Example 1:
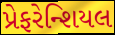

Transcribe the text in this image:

પ્રેફરેન્શિયલ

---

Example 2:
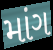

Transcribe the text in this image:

માંગ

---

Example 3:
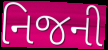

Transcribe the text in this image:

નિજની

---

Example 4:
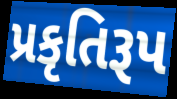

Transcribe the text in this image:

પ્રકૃતિરૂપ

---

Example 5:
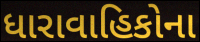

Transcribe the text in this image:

ધારાવાહિકોના